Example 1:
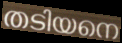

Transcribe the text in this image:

തടിയനെ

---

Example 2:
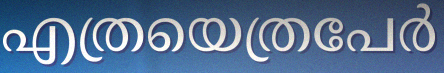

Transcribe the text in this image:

എത്രയെത്രപേർ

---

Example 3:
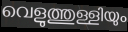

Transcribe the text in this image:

വെളുത്തുള്ളിയും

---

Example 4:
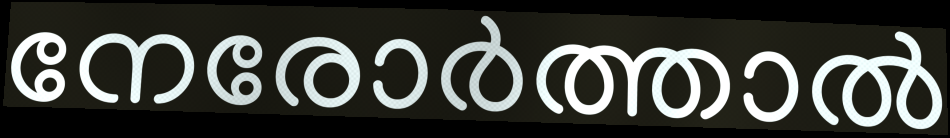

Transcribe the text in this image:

നേരോർത്താൽ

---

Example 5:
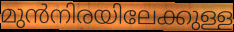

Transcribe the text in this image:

മുൻനിരയിലേക്കുള്ള